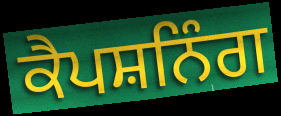
ਕੈਪਸ਼ਨਿੰਗ